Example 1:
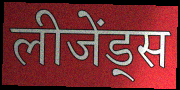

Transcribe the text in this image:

लीजेंड्स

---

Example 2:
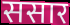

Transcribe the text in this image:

ससार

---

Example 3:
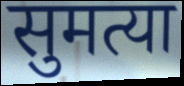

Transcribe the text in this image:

सुमत्या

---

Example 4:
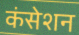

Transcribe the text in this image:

कंसेशन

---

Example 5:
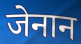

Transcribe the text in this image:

जेनान